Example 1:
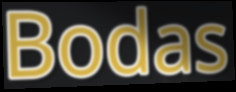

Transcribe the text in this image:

Bodas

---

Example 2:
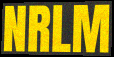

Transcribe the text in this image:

NRLM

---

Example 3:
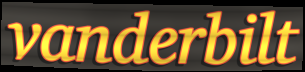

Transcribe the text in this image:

vanderbilt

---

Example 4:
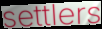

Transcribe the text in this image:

settlers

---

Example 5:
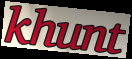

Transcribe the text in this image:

khunt